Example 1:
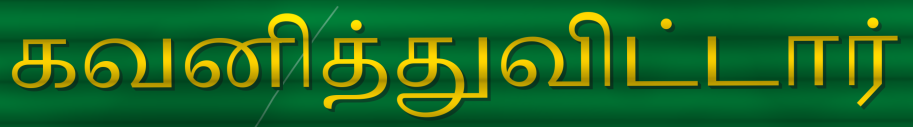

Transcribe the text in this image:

கவனித்துவிட்டார்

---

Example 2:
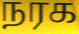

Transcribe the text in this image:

நரக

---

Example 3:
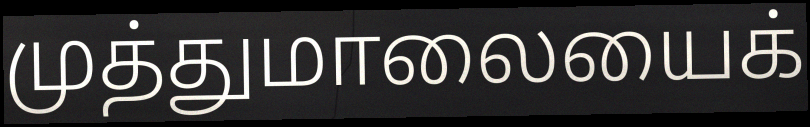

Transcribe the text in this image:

முத்துமாலையைக்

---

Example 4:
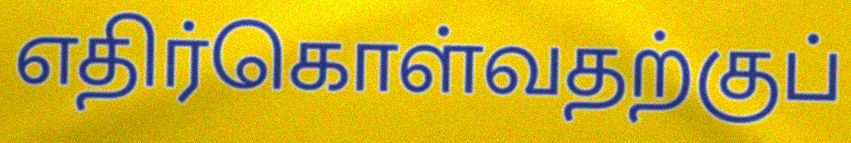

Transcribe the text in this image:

எதிர்கொள்வதற்குப்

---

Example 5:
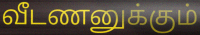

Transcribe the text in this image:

வீடணனுக்கும்